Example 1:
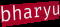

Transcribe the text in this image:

bharyu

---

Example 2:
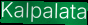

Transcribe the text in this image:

Kalpalata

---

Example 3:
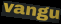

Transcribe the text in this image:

vangu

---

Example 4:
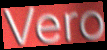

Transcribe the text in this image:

Vero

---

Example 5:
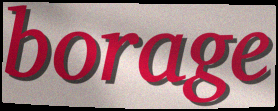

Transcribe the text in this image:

borage